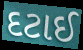
દટાઈ